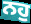
ਨਹੁ